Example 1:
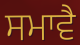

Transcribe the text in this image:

ਸਮਾਵੈ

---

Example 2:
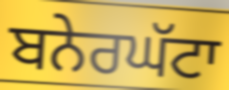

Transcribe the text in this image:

ਬਨੇਰਘੱਟਾ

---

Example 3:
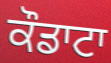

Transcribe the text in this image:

ਕੌਡਾਟਾ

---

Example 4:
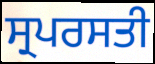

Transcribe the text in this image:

ਸ੍ਰਪਰਸਤੀ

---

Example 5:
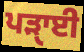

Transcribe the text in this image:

ਪੜਾੑਈ